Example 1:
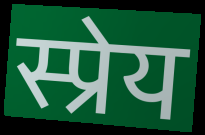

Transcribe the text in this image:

स्प्रेय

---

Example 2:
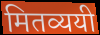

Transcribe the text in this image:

मितव्ययी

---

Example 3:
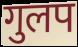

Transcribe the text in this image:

गुलप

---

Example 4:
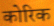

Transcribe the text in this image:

कोरिक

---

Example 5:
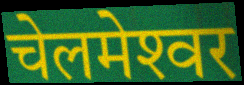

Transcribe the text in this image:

चेलमेश्‍वर